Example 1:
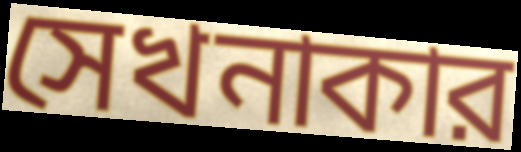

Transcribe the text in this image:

সেখনাকার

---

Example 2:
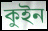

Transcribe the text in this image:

কুইন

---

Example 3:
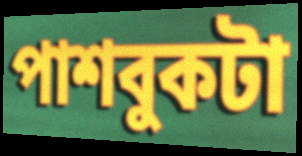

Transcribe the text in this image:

পাশবুকটা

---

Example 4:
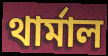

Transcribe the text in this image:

থার্মাল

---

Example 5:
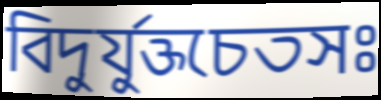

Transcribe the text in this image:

বিদুর্যুক্তচেতসঃ